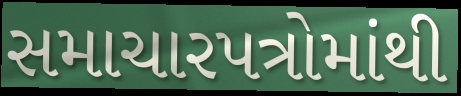
સમાચારપત્રોમાંથી